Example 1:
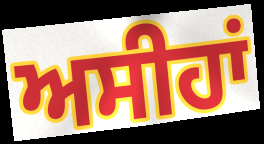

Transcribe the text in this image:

ਅਸੀਹਾਂ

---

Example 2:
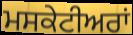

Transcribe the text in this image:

ਮਸਕੇਟੀਅਰਾਂ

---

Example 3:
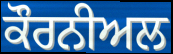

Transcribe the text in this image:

ਕੌਰਨੀਅਲ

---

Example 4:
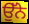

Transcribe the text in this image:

ਉੱਨੇ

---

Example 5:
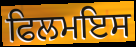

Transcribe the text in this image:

ਫਿਲਮਇਸ